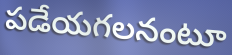
పడేయగలనంటూ